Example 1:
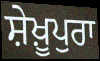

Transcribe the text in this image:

ਸ਼ੇਖ਼ੂਪੁਰਾ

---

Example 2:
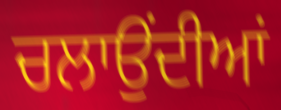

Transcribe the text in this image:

ਚਲਾਉਂਦੀਆਂ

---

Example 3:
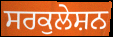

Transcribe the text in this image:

ਸਰਕੁਲੇਸ਼ਨ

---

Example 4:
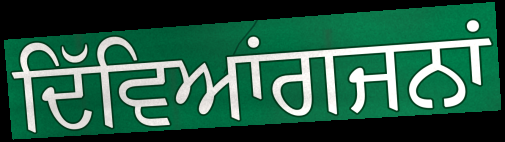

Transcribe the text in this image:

ਦਿੱਵਿਆਂਗਜਨਾਂ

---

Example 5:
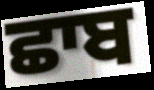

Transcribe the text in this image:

ਛਾਬ